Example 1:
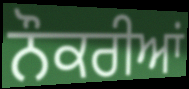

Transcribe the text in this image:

ਨੌਕਰੀਆਂ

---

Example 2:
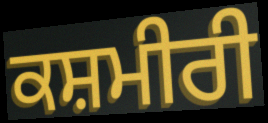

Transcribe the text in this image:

ਕਸ਼ਮੀਰੀ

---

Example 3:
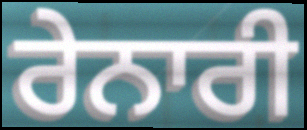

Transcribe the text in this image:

ਰੇਨਾਰੀ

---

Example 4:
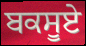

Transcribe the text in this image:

ਬਕਸੂਏ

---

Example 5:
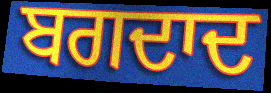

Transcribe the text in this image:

ਬਗਦਾਦ